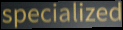
specialized